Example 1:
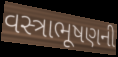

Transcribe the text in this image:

વસ્ત્રાભૂષણની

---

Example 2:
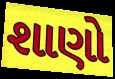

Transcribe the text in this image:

શાણો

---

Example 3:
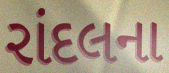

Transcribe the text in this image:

રાંદલના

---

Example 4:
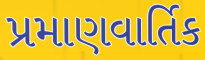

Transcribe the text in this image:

પ્રમાણવાર્તિક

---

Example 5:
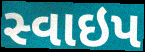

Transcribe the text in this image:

સ્વાઇપ